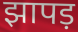
झापड़